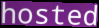
hosted